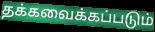
தக்கவைக்கப்படும்